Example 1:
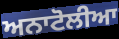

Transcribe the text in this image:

ਅਨਾਟੋਲੀਆ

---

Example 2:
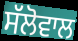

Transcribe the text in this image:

ਸੱਲੋਵਾਲ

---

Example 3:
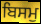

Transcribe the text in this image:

ਬਿਸਮੁ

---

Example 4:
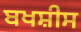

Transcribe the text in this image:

ਬਖਸ਼ੀਸ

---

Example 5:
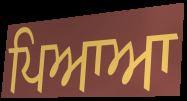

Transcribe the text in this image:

ਪਿਆਆ